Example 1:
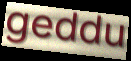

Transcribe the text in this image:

geddu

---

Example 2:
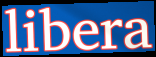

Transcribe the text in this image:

libera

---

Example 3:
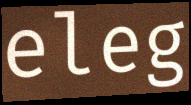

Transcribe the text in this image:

eleg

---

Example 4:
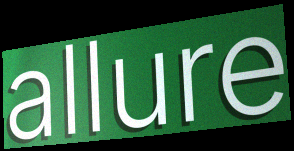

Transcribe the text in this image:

allure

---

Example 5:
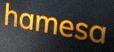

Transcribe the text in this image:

hamesa